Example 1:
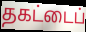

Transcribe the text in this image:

தகட்டைப்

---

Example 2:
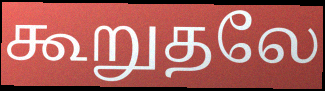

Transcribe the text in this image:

கூறுதலே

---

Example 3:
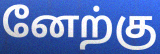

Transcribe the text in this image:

னேற்கு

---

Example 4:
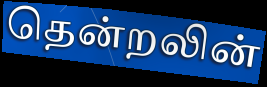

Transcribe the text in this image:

தென்றலின்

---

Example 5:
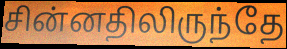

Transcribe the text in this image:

சின்னதிலிருந்தே